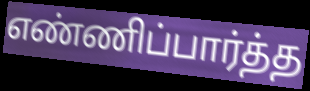
எண்ணிப்பார்த்த